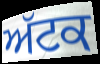
ਅੱਟਕ